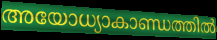
അയോധ്യാകാണ്ഡത്തിൽ